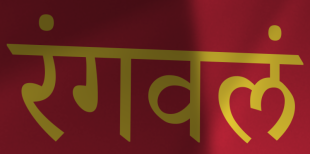
रंगवलं